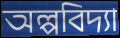
অল্পবিদ্যা